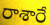
రాశారే